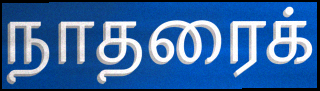
நாதரைக்